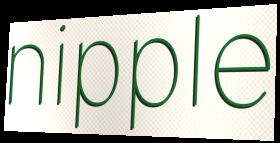
nipple